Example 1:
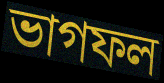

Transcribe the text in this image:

ভাগফল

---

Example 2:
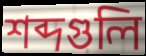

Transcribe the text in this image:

শব্দগুলি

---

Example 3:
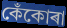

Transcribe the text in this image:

কেঁকোৰা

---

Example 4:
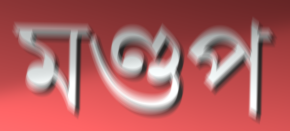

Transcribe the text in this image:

মণ্ডপ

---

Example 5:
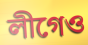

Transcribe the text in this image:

লীগেও